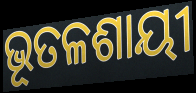
ଭୂତଳଶାୟୀ